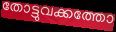
തോട്ടുവക്കത്തോ